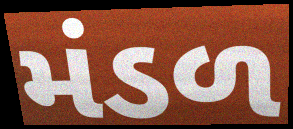
મંડળ